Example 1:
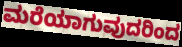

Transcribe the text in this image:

ಮರೆಯಾಗುವುದರಿಂದ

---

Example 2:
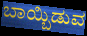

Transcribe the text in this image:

ಬಾಯ್ಬಿಡುವ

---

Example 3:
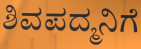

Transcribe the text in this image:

ಶಿವಪದ್ಮನಿಗೆ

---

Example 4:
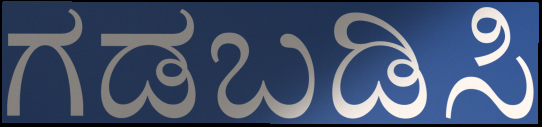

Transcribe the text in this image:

ಗಡಬಡಿಸಿ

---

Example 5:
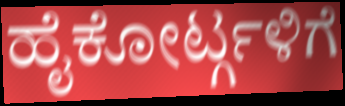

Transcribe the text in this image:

ಹೈಕೋರ್ಟ್ಗಳಿಗೆ